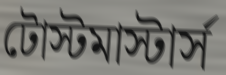
টোস্টমাস্টার্স